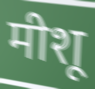
मीशू